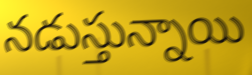
నడుస్తున్నాయి